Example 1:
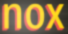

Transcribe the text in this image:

nox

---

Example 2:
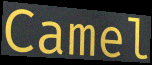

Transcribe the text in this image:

Camel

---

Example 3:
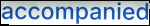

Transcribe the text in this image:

accompanied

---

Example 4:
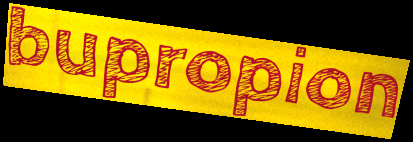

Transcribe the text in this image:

bupropion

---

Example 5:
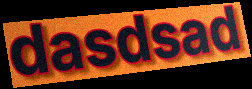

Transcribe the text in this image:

dasdsad